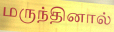
மருந்தினால்